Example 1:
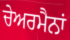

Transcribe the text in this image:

ਚੇਅਰਮੈਨਾਂ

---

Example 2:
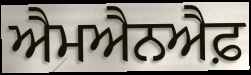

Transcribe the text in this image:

ਐਮਐਨਐਫ਼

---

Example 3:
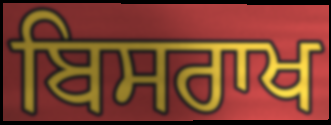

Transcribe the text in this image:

ਬਿਸਰਾਖ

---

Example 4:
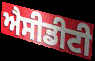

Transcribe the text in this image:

ਐਸੀਡੀਟੀ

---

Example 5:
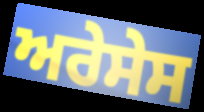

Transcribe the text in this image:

ਅਰੇਸੇਸ